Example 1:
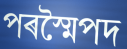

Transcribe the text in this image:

পৰস্মৈপদ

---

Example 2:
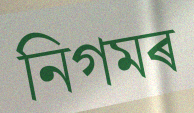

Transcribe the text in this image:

নিগমৰ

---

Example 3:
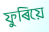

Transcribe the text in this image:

ফুৰিয়ে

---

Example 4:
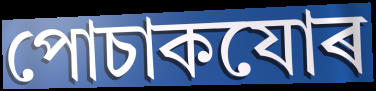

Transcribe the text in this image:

পোচাকযোৰ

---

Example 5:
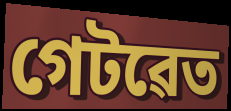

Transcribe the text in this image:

গেটৱেত